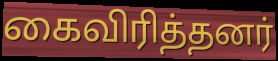
கைவிரித்தனர்